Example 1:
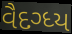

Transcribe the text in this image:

વૈદગ્ધ્ય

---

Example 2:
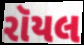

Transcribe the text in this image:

રૉયલ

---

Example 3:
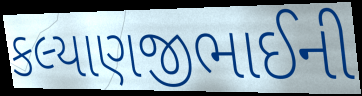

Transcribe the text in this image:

કલ્યાણજીભાઈની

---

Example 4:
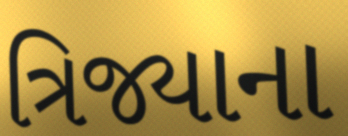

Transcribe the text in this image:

ત્રિજ્યાના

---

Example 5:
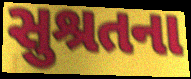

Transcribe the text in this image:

સુશ્રતના